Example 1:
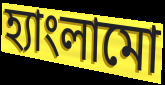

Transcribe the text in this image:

হ্যাংলামো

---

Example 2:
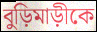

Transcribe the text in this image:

বুড়িমাড়ীকে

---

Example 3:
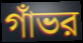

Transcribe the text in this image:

গাঁভর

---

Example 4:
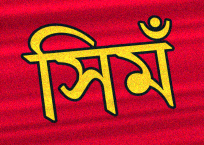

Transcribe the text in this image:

সিমঁ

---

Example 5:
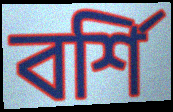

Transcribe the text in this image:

বর্শি